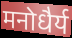
मनोधैर्य